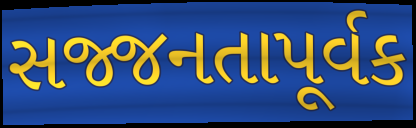
સજ્જનતાપૂર્વક